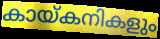
കായ്കനികളും